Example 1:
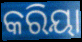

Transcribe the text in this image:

କରିୟା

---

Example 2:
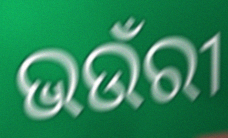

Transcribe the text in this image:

ଭଉଁରୀ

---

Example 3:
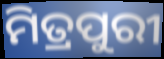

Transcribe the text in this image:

ମିତ୍ରପୁରୀ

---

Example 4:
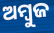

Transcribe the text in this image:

ଅମ୍ୱୁଜ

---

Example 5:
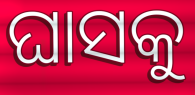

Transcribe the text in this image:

ଘାସକୁ